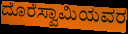
ದೊರೆಸ್ವಾಮಿಯವರ